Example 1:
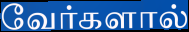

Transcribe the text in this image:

வேர்களால்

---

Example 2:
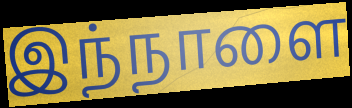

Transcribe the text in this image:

இந்நாளை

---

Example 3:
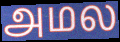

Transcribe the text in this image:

அமல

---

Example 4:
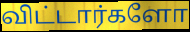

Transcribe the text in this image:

விட்டார்களோ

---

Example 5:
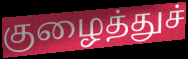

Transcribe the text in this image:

குழைத்துச்